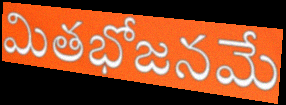
మితభోజనమే